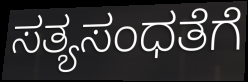
ಸತ್ಯಸಂಧತೆಗೆ